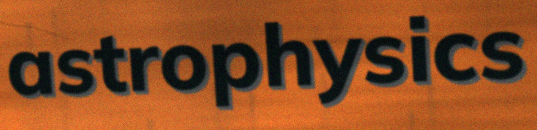
astrophysics